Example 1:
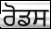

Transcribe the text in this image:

ਰੋਡਸ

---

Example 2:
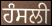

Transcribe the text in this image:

ਹੰਸਲੀ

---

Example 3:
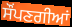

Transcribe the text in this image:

ਸੌਂਪਣਗੀਆਂ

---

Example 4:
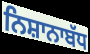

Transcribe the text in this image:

ਨਿਸ਼ਾਨਾਬੱਧ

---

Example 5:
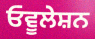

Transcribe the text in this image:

ਓਵੂਲੇਸ਼ਨ